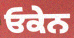
ਓਕੇਨ